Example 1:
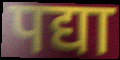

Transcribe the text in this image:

पद्या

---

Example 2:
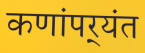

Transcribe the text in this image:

कणांपर्यंत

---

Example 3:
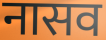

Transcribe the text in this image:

नासव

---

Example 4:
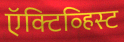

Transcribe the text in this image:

ऍक्टिव्हिस्ट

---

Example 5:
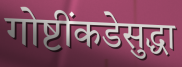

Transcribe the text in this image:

गोष्टींकडेसुद्धा